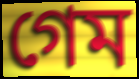
গেম